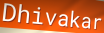
Dhivakar